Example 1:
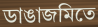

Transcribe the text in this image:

ডাঙাজমিতে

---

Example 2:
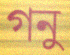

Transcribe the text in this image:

গনু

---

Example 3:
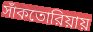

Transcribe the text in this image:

সাঁকতোরিয়ায়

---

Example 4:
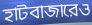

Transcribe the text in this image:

হাটবাজারেও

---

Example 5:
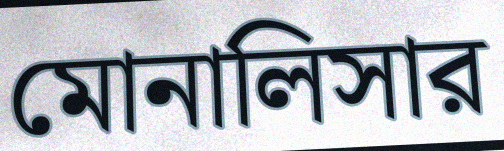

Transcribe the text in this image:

মোনালিসার